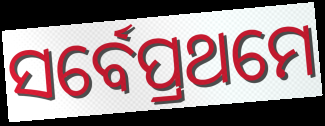
ସର୍ବେପ୍ରଥମେ